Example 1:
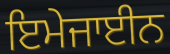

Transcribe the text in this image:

ਇਮੇਜਾਈਨ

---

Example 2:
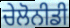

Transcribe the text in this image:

ਚੇਲੋਨੀਡੀ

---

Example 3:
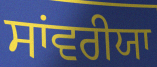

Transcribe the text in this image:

ਸਾਂਵਰੀਯਾ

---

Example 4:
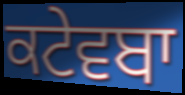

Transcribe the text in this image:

ਕਟੇਵਬਾ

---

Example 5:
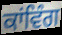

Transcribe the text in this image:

ਕਾਂਵਿੰਗ